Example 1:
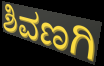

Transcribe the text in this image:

ಶಿವಣಗಿ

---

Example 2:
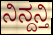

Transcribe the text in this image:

ನಿನ್ದನ್ತಿ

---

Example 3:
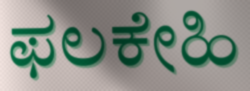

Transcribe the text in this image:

ಫಲಕೇಹಿ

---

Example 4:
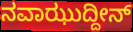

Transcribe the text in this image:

ನವಾಝುದ್ದೀನ್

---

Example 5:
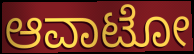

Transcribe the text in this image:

ಆವಾಟೋ